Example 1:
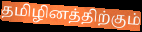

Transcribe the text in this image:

தமிழினத்திற்கும்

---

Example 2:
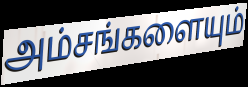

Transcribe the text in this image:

அம்சங்களையும்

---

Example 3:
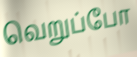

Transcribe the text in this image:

வெறுப்போ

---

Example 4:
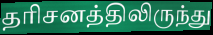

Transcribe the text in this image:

தரிசனத்திலிருந்து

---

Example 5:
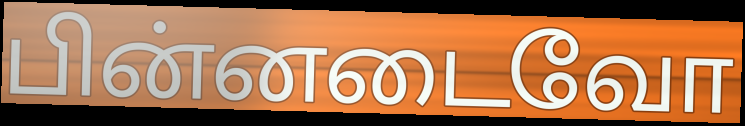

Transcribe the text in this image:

பின்னடைவோ